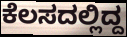
ಕೆಲಸದಲ್ಲಿದ್ದ